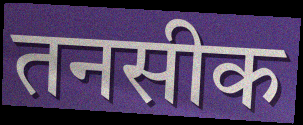
तनसीक